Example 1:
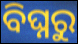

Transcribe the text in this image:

ବିଘ୍ନରୁ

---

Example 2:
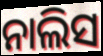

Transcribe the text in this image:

ନାଲିସ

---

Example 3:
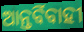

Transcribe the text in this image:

ଆନ୍ତର୍ବିବାହୀ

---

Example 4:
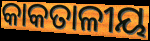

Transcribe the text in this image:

କାକତାଳୀୟ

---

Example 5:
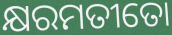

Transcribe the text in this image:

କ୍ଷରମତୀତୋ